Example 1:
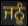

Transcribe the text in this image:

ਜਨੂੰ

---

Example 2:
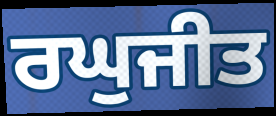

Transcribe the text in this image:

ਰਘੁਜੀਤ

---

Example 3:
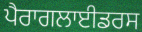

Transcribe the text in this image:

ਪੈਰਾਗਲਾਈਡਰਸ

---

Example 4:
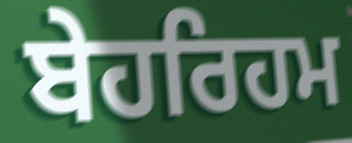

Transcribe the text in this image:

ਬੇਹਰਿਹਮ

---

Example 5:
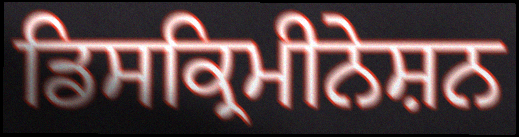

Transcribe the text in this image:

ਡਿਸਕ੍ਰਿਮੀਨੇਸ਼ਨ